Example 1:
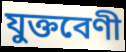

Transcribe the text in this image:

যুক্তবেণী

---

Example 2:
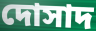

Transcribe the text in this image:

দোসাদ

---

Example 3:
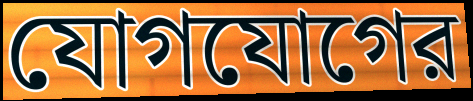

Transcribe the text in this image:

যোগযোগের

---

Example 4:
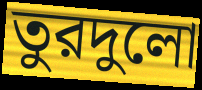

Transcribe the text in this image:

তুরদুলো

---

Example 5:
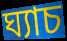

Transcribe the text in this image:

ঘ্যাচ